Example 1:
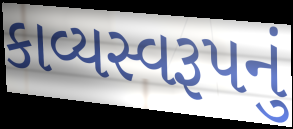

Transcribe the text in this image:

કાવ્યસ્વરૂપનું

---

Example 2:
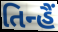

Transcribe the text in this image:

તિન્હૈં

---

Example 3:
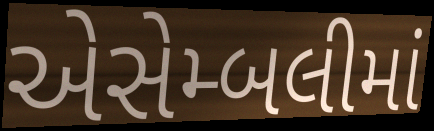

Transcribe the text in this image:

એસેમ્બલીમાં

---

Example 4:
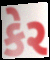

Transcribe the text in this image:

કેર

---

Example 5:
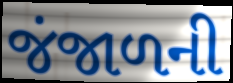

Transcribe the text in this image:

જંજાળની